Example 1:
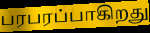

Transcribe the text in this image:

பரபரப்பாகிறது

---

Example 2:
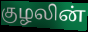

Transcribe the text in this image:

குழலின்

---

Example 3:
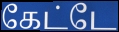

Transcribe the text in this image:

கேட்டே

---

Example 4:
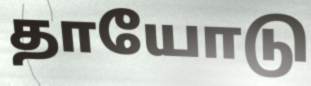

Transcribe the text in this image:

தாயோடு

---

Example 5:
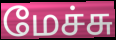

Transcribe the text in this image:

மேச்சு